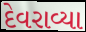
દેવરાવ્યા